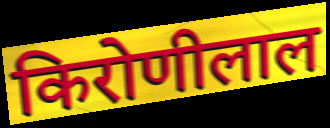
किरोणीलाल